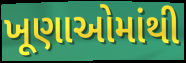
ખૂણાઓમાંથી